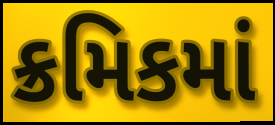
ક્રમિકમાં